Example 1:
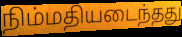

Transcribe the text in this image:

நிம்மதியடைந்தது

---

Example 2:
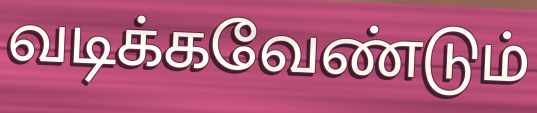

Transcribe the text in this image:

வடிக்கவேண்டும்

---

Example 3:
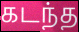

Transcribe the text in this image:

கடந்த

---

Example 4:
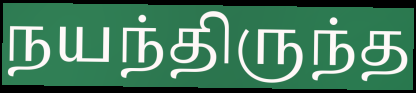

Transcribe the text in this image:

நயந்திருந்த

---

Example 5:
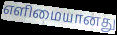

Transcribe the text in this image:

எளிமையானது